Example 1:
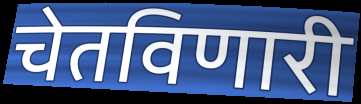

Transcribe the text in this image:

चेतविणारी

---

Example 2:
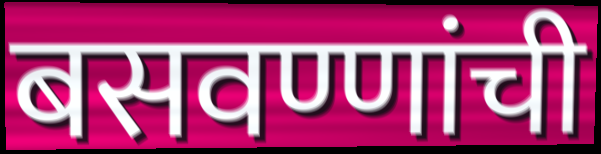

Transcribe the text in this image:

बसवण्णांची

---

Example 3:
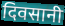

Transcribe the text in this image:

दिवसानी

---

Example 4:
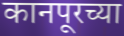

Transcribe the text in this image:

कानपूरच्या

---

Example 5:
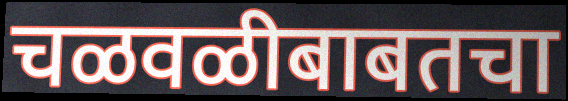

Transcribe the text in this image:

चळवळीबाबतचा